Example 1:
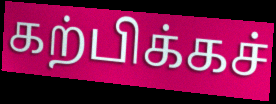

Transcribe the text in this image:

கற்பிக்கச்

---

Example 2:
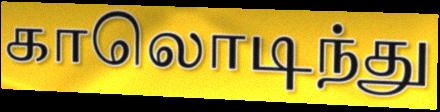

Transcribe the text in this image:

காலொடிந்து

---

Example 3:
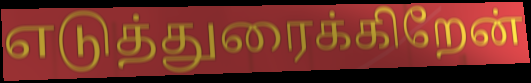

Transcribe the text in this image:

எடுத்துரைக்கிறேன்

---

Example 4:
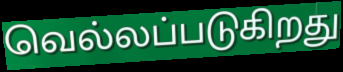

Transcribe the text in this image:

வெல்லப்படுகிறது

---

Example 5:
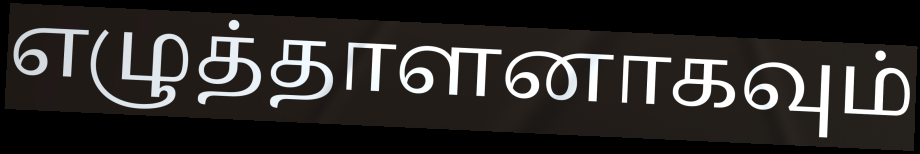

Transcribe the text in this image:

எழுத்தாளனாகவும்